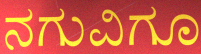
ನಗುವಿಗೂ